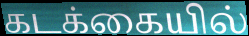
கடக்கையில்